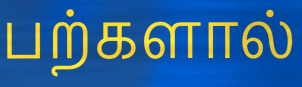
பற்களால்